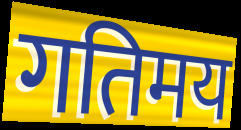
गतिमय